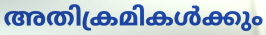
അതിക്രമികൾക്കും